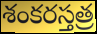
శంకరస్తత్ర